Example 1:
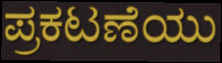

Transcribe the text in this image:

ಪ್ರಕಟಣೆಯು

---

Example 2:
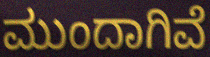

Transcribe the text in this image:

ಮುಂದಾಗಿವೆ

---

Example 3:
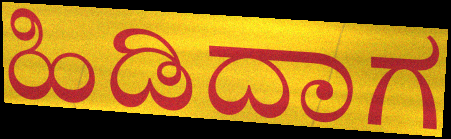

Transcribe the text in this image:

ಹಿಡಿದಾಗ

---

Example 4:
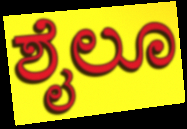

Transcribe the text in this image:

ಶೈಲೂ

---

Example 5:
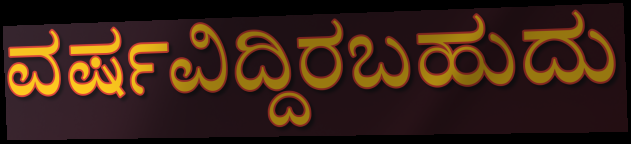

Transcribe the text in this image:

ವರ್ಷವಿದ್ದಿರಬಹುದು